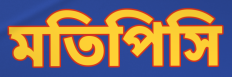
মতিপিসি